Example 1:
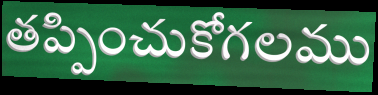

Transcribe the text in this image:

తప్పించుకోగలము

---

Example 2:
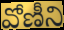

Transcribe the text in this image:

వోణీని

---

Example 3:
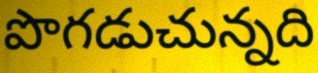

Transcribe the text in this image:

పొగడుచున్నది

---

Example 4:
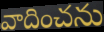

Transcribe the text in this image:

వాదించను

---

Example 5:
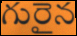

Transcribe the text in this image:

గురైన